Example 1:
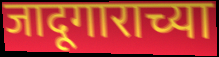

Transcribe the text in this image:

जादूगाराच्या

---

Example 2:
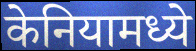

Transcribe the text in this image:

केनियामध्ये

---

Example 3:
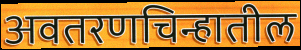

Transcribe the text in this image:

अवतरणचिन्हातील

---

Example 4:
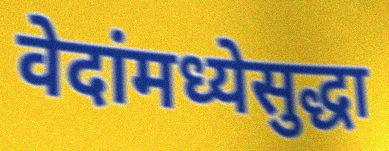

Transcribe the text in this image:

वेदांमध्येसुद्धा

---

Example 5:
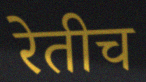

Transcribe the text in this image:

रेतीच